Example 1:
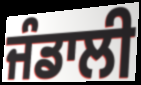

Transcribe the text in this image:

ਜੰਡਾਲੀ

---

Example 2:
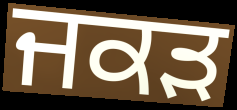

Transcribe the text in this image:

ਜਕੜ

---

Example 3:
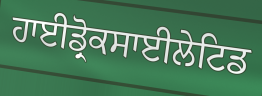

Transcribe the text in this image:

ਹਾਈਡ੍ਰੋਕਸਾਈਲੇਟਿਡ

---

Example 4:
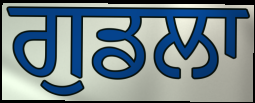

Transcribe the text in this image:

ਗੁਡਲਾ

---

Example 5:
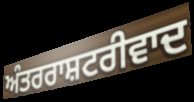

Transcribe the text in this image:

ਅੰਤਰਰਾਸ਼ਟਰੀਵਾਦ